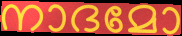
നാദമോ